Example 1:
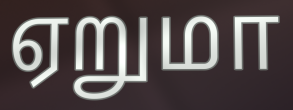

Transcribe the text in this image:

ஏறுமா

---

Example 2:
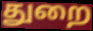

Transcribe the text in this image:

துறை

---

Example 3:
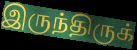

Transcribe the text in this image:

இருந்திருக்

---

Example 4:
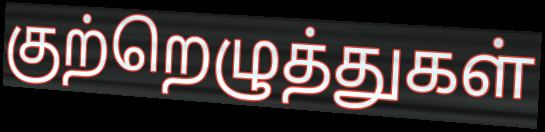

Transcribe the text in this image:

குற்றெழுத்துகள்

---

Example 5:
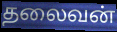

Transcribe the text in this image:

தலைவன்